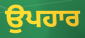
ਉਪਹਾਰ